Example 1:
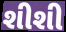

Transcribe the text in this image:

શીશી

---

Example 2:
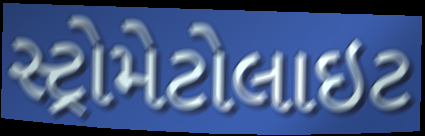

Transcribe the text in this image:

સ્ટ્રોમેટોલાઇટ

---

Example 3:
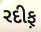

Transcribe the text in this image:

રદીફ઼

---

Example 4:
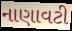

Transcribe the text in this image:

નાણાવટી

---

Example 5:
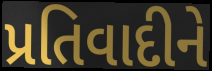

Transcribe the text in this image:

પ્રતિવાદીને